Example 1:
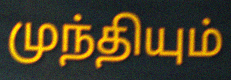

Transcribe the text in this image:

முந்தியும்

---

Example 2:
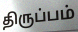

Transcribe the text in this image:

திருப்பம்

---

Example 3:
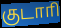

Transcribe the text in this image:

குடாரி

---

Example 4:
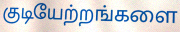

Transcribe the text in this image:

குடியேற்றங்களை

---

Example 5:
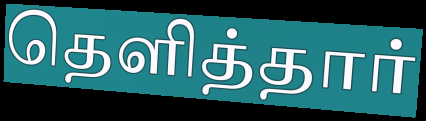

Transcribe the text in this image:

தெளித்தார்